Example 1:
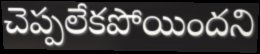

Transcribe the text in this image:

చెప్పలేకపోయిందని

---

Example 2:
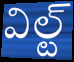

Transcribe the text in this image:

విల్ట్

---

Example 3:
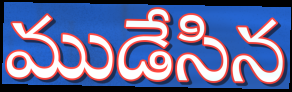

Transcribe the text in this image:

ముడేసిన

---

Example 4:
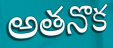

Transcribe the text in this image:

అతనొక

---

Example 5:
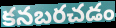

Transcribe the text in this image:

కనబరచడం